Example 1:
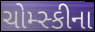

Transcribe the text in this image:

ચોમ્સ્કીના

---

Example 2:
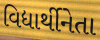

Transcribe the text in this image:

વિદ્યાર્થીનેતા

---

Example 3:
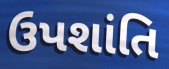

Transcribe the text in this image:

ઉપશાંતિ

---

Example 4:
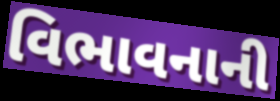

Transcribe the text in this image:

વિભાવનાની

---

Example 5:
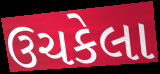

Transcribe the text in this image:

ઉચકેલા